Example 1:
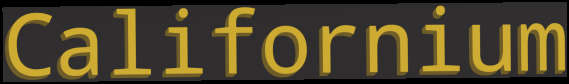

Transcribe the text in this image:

Californium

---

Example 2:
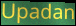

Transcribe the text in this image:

Upadan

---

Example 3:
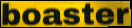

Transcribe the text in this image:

boaster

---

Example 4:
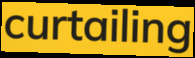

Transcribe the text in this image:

curtailing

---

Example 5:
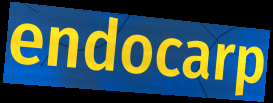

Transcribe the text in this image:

endocarp